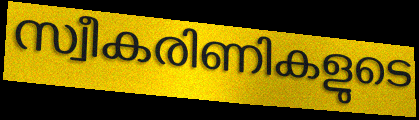
സ്വീകരിണികളുടെ